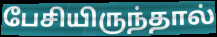
பேசியிருந்தால்